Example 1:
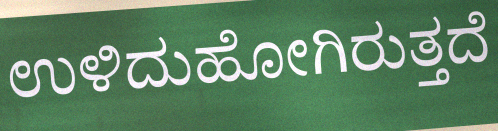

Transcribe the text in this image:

ಉಳಿದುಹೋಗಿರುತ್ತದೆ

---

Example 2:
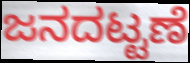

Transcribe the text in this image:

ಜನದಟ್ಟಣೆ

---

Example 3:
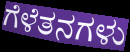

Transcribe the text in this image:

ಗೆಳೆತನಗಳು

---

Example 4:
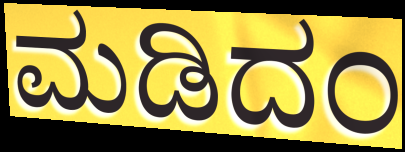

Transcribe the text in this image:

ಮಡಿದಂ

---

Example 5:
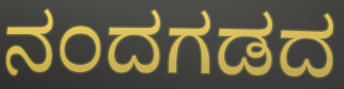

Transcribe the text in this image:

ನಂದಗಡದ